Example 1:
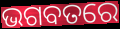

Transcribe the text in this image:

ଭଗବତରେ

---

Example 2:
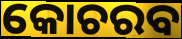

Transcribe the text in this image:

କୋଚରବ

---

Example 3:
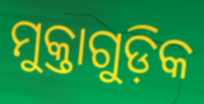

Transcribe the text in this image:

ମୁକ୍ତାଗୁଡ଼ିକ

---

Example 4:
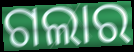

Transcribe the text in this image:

ଗଲାର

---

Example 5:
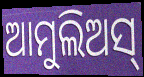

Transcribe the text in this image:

ଆମୁଲିଅସ୍